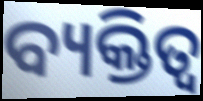
ବ୍ୟକ୍ତିତ୍ଵ